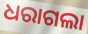
ଧରାଗଲା